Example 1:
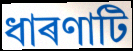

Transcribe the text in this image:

ধাৰণাটি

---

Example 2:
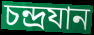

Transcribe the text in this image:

চন্দ্ৰযান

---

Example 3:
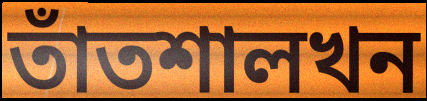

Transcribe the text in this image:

তাঁতশালখন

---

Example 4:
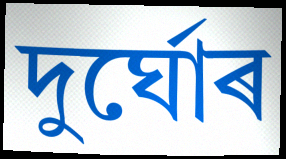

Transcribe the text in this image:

দুৰ্ঘোৰ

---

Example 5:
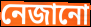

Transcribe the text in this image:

নেজানো